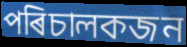
পৰিচালকজন